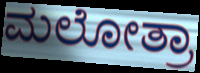
ಮಲೋತ್ರಾ